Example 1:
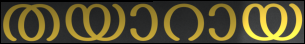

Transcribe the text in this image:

തയാറായ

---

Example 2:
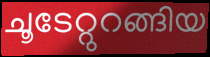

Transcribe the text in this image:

ചൂടേറ്റുറങ്ങിയ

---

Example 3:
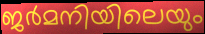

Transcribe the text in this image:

ജർമനിയിലെയും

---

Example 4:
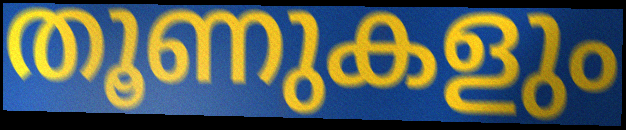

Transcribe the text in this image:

തൂണുകളും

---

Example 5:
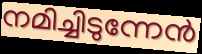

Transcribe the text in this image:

നമിച്ചിടുന്നേൻ